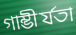
গাম্ভীর্যতা